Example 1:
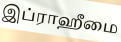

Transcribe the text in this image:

இப்ராஹீமை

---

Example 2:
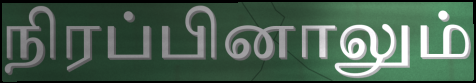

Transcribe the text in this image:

நிரப்பினாலும்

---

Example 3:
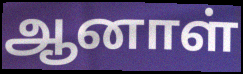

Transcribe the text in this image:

ஆனாள்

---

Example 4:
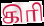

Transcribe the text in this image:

கிரி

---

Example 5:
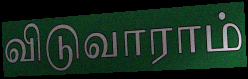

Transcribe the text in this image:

விடுவாராம்